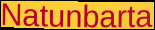
Natunbarta